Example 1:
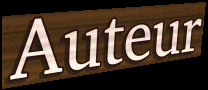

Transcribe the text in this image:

Auteur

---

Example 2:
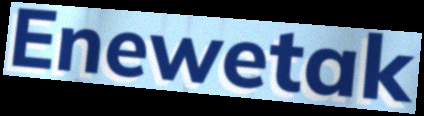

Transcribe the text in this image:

Enewetak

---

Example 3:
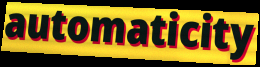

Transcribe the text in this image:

automaticity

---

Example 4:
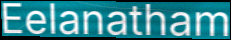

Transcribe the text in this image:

Eelanatham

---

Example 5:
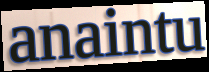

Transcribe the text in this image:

anaintu